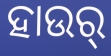
ହାଉର୍